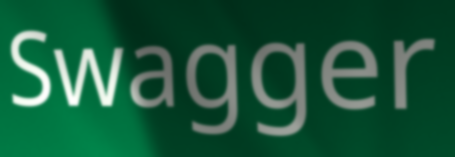
Swagger